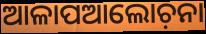
ଆଳାପଆଲୋଚ଼ନା